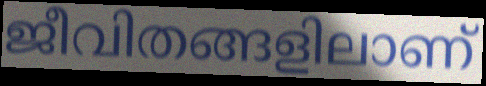
ജീവിതങ്ങളിലാണ്